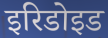
इरिडोइड